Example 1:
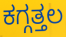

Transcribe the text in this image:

ಕಗ್ಗತ್ತಲ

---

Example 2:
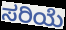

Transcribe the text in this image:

ಸರಿಯೆ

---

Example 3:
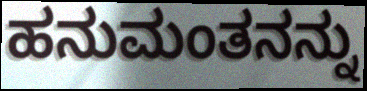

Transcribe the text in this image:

ಹನುಮಂತನನ್ನು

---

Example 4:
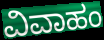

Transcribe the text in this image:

ವಿವಾಹಂ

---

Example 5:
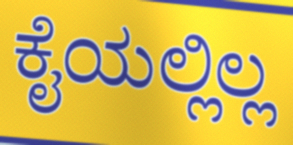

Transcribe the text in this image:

ಕೈಯಲ್ಲಿಲ್ಲ